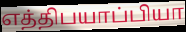
எத்திபயாப்பியா